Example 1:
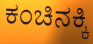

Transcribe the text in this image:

ಕಂಚಿನಕ್ಕಿ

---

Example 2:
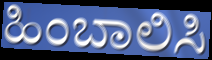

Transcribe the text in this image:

ಹಿಂಬಾಲಿಸಿ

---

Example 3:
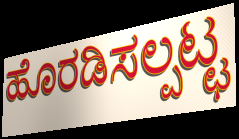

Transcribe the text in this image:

ಹೊರಡಿಸಲ್ಪಟ್ಟ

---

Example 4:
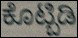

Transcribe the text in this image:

ಕೊಟ್ಬಿಡಿ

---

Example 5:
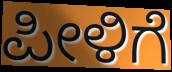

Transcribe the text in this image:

ಪೀಳಿಗೆ